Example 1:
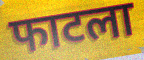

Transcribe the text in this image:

फाटला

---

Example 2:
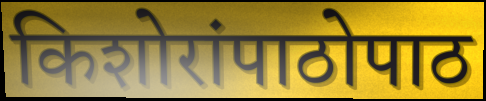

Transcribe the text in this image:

किशोरांपाठोपाठ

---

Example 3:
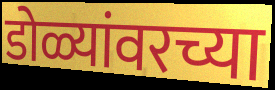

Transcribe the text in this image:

डोळ्यांवरच्या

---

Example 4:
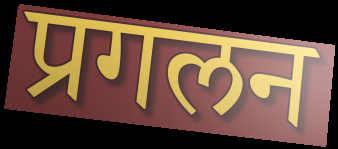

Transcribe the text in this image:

प्रगलन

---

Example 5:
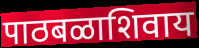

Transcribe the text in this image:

पाठबळाशिवाय